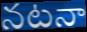
నటనా